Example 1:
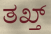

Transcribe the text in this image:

ತಖ್ತ್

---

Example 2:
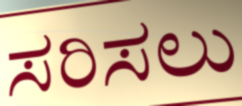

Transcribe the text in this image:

ಸರಿಸಲು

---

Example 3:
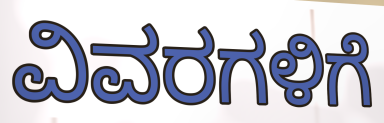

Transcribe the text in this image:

ವಿವರಗಳಿಗೆ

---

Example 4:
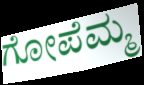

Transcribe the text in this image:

ಗೋಪೆಮ್ಮ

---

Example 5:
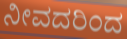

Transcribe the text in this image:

ನೀವದರಿಂದ